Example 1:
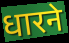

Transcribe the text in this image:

धारने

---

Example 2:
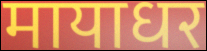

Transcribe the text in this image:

मायाधर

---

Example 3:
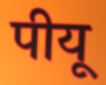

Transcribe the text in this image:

पीयू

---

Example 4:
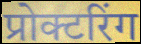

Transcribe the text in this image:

प्रोक्टरिंग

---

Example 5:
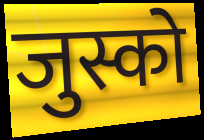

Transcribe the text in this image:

जुस्को